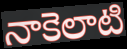
నాకెలాటి